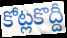
కోట్లకొద్దీ